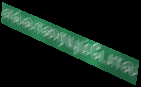
எல்லாரையும்போல